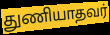
துணியாதவர்